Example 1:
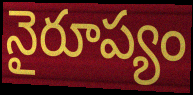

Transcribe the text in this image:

నైరూప్యం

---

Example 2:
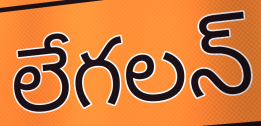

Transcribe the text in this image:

లేగలన్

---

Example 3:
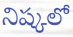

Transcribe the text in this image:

నిష్కలో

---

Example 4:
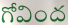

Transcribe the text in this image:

గోవింద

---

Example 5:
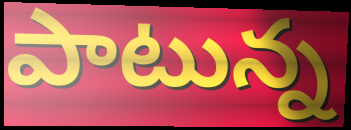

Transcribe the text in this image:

పాటున్న